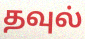
தவுல்